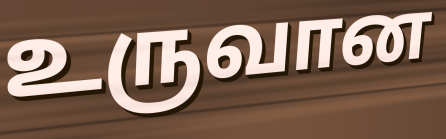
உருவான